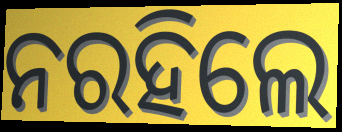
ନରହିଲେ